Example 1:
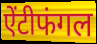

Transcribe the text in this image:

ऐंटीफंगल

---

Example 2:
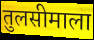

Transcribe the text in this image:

तुलसीमाला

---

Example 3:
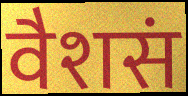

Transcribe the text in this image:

वैशसं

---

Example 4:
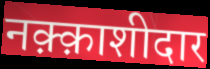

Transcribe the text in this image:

नक़्क़ाशीदार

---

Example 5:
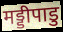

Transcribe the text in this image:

मड्डीपाडु